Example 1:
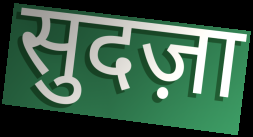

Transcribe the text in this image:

सुदज़ा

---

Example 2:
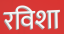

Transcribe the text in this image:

रविशा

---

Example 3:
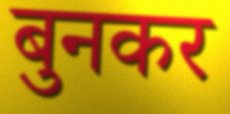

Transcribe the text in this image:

बुनकर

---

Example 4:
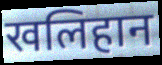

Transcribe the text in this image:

खलिहान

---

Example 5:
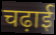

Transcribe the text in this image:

चढ़ाई